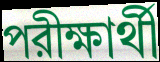
পরীক্ষার্থী